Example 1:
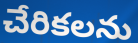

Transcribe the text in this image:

చేరికలను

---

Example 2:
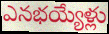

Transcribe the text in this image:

ఎనభయ్యేళ్లు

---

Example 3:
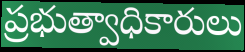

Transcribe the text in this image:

ప్రభుత్వాధికారులు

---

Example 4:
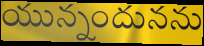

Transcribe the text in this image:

యున్నందునను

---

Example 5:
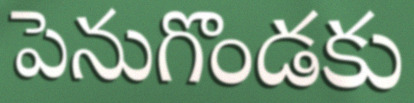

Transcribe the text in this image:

పెనుగొండకు